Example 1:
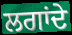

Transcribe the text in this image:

ਲਗਾਂਦੇ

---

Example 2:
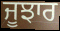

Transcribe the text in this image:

ਜੂਝਾਰ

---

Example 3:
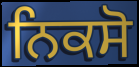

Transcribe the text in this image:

ਨਿਕਸੋ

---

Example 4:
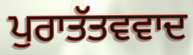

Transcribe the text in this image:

ਪੁਰਾਤੱਤਵਵਾਦ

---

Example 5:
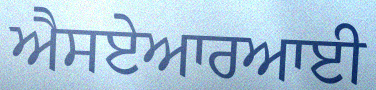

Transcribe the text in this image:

ਐਸਏਆਰਆਈ